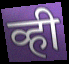
व्‍ही